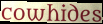
cowhides